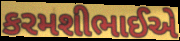
કરમશીભાઈએ